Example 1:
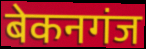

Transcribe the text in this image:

बेकनगंज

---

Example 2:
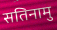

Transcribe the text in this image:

सतिनामु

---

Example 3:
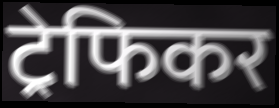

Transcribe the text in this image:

ट्रेफिकर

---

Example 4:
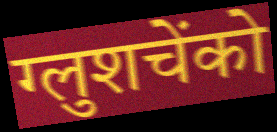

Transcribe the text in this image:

ग्लुशचेंको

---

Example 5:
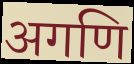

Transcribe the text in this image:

अगणि